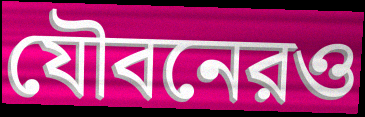
যৌবনেরও